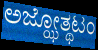
ಅಜ್ಝೋತ್ಥಟಂ